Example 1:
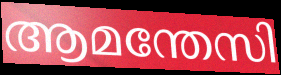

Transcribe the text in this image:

ആമന്തേസി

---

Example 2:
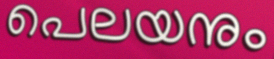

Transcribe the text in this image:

പെലയനും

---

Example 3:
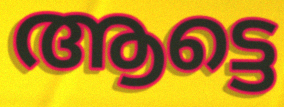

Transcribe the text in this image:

ആട്ടെ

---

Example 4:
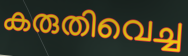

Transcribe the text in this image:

കരുതിവെച്ച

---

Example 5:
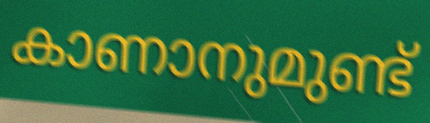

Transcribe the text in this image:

കാണാനുമുണ്ട്